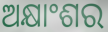
ଅକ୍ଷାଂଶର